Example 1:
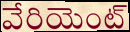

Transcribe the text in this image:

వేరియెంట్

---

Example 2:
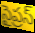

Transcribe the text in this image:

సైప్రస్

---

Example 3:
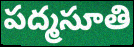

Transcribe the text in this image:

పద్మసూతి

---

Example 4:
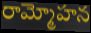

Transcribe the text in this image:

రామ్మోహన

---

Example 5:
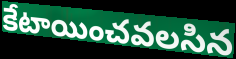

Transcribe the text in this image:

కేటాయించవలసిన